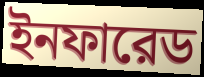
ইনফারেড